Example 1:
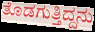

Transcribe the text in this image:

ತೊಡಗುತ್ತಿದ್ದನು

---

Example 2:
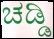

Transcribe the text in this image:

ಚಡ್ಡಿ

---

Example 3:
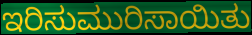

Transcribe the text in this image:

ಇರಿಸುಮುರಿಸಾಯಿತು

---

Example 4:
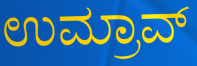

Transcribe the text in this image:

ಉಮ್ರಾವ್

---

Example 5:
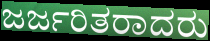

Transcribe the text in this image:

ಜರ್ಜರಿತರಾದರು